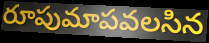
రూపుమాపవలసిన